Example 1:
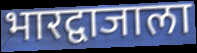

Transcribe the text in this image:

भारद्वाजाला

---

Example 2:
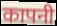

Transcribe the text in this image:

कापनी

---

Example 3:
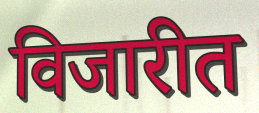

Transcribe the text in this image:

विजारीत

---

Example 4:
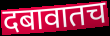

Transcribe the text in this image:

दबावातच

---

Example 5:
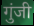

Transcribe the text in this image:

गुंजी